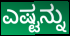
ಎಷ್ಟನ್ನು